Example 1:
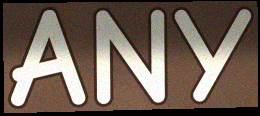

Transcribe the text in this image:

ANY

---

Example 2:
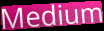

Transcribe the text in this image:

Medium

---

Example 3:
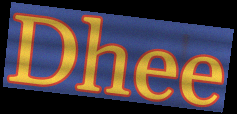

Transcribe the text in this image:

Dhee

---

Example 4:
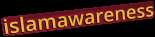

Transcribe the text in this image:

islamawareness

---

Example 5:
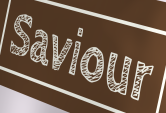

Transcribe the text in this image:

Saviour